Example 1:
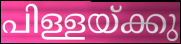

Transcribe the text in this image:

പിള്ളയ്ക്കു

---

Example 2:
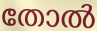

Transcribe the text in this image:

തോൽ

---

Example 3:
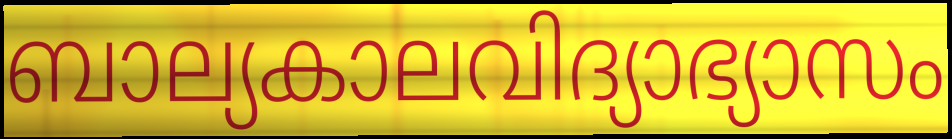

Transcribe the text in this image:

ബാല്യകാലവിദ്യാഭ്യാസം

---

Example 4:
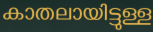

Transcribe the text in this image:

കാതലായിട്ടുള്ള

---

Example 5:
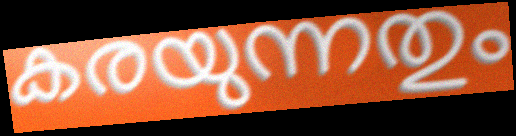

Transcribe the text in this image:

കരയുന്നതും